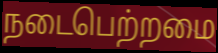
நடைபெற்றமை